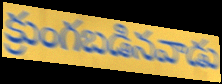
క్రుంగబడినవాడు